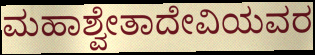
ಮಹಾಶ್ವೇತಾದೇವಿಯವರ